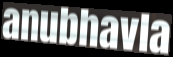
anubhavla